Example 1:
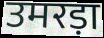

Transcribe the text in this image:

उमरड़ा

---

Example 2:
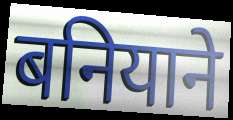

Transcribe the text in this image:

बनियाने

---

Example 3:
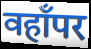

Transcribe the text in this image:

वहाँपर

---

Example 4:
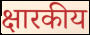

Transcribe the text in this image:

क्षारकीय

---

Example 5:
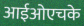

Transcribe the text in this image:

आईओएचके